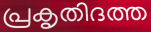
പ്രകൃതിദത്ത